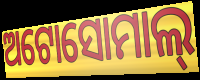
ଅଟୋସୋମାଲ୍